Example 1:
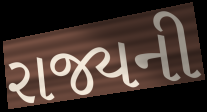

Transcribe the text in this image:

રાજ્યની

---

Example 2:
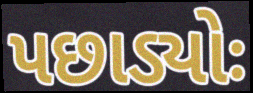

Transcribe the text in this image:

પછાડ્યોઃ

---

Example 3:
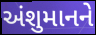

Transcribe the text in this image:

અંશુમાનને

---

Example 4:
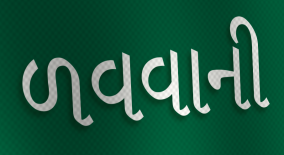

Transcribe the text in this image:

ળવવાની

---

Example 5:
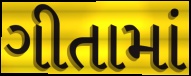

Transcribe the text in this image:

ગીતામાં